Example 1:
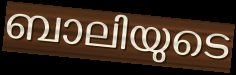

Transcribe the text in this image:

ബാലിയുടെ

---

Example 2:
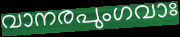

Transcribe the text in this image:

വാനരപുംഗവാഃ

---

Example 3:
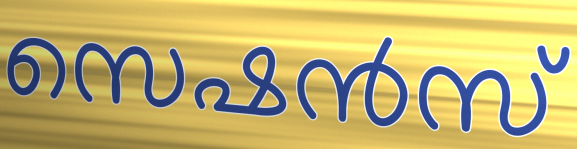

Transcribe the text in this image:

സെഷൻസ്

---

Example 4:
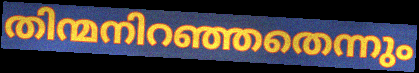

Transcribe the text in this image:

തിന്മനിറഞ്ഞതെന്നും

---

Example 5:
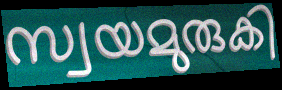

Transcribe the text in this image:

സ്വയമുരുകി